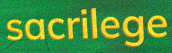
sacrilege